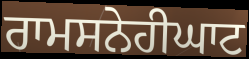
ਰਾਮਸਨੇਹੀਘਾਟ